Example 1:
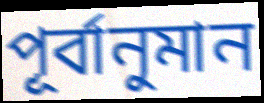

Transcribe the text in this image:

পূৰ্বানুমান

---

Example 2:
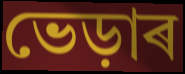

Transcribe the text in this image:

ভেড়াৰ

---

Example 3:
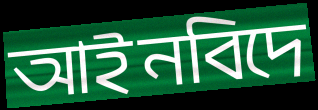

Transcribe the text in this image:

আইনবিদে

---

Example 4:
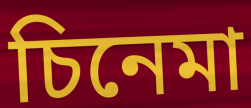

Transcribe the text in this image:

চিনেমা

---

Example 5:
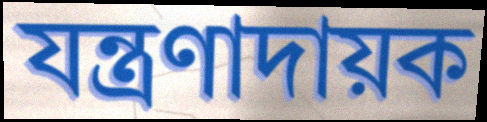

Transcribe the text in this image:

যন্ত্ৰণাদায়ক